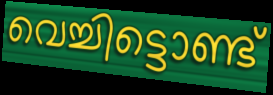
വെച്ചിട്ടൊണ്ട്